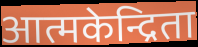
आत्मकेन्द्रिता